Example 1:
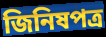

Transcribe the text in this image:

জিনিষপত্র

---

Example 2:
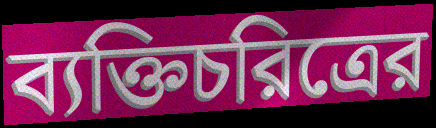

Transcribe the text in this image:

ব্যক্তিচরিত্রের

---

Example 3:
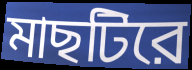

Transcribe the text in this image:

মাছটিরে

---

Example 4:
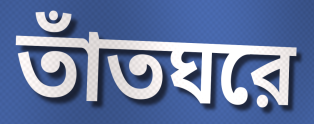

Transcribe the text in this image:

তাঁতঘরে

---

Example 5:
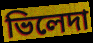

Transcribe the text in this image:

ভিলেদা